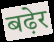
बढ़ेर